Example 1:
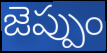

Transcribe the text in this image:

జెప్పుం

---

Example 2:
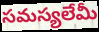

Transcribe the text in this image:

సమస్యలేమీ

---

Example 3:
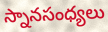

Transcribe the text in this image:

స్నానసంధ్యలు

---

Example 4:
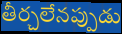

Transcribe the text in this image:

తీర్చలేనప్పుడు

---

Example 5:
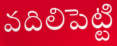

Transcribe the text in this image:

వదిలిపెట్టి